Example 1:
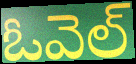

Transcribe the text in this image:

ఓవెల్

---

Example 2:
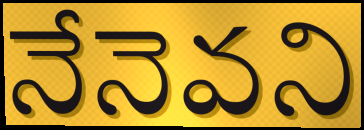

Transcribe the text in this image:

నేనెవని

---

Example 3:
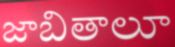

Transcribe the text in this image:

జాబితాలూ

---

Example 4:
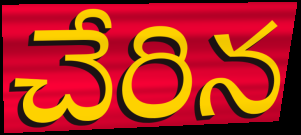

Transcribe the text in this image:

చేరిన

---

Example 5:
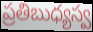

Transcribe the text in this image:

ప్రతిబుధ్యస్వ